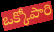
ఒక్కోపారి